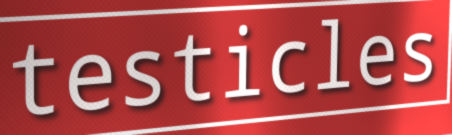
testicles